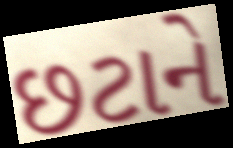
છટાને